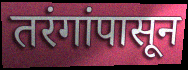
तरंगांपासून